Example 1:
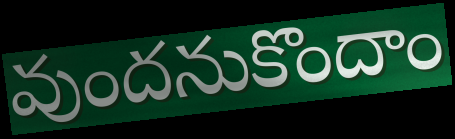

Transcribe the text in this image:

వుందనుకొందాం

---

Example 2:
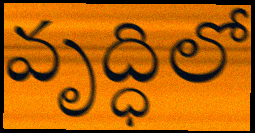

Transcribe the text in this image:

వృద్ధిలో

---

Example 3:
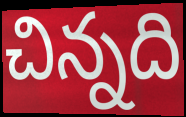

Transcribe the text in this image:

చిన్నది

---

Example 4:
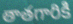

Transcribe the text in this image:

తాతగారికి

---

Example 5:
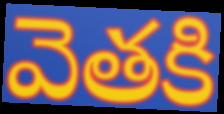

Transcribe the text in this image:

వెతకి